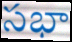
సభా